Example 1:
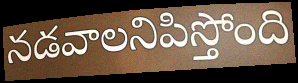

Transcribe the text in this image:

నడవాలనిపిస్తోంది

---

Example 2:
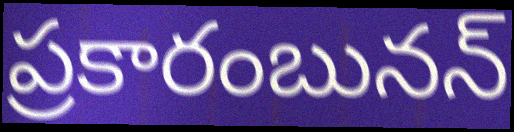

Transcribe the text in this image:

ప్రకారంబునన్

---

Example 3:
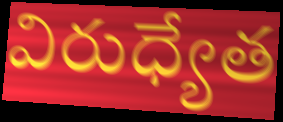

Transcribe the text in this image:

విరుధ్యేత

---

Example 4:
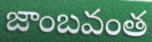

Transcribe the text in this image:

జాంబవంత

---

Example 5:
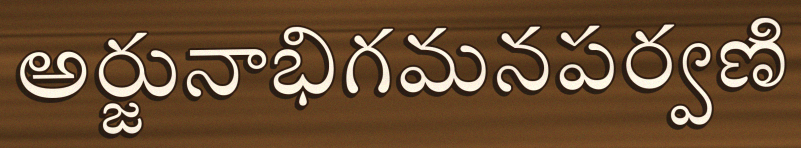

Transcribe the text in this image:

అర్జునాభిగమనపర్వణి